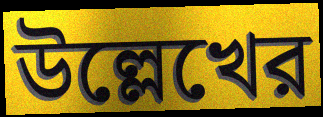
উল্লেখের